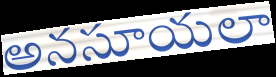
అనసూయలా